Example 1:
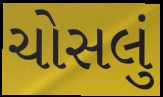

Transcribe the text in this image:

ચોસલું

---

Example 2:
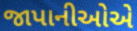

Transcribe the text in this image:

જાપાનીઓએ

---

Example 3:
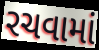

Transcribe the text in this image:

રચવામાં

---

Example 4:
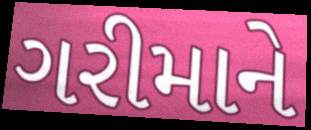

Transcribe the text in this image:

ગરીમાને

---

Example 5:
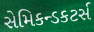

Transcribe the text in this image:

સેમિકન્ડકટર્સ